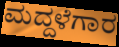
ಮದ್ದಳೆಗಾರ